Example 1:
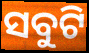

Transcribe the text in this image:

ସବୁଟି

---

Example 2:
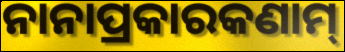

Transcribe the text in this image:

ନାନାପ୍ରକାରକଣାମ୍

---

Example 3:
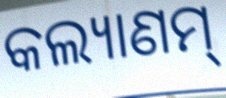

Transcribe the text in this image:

କଲ୍ୟାଣମ୍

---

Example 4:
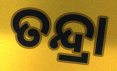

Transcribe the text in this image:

ତନ୍ଦ୍ରା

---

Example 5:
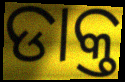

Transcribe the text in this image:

ଡାକ୍ତ